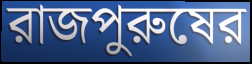
রাজপুরুষের